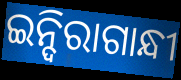
ଇନ୍ଦିରାଗାନ୍ଧୀ